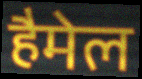
हैमेल